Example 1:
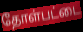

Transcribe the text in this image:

தோள்பட்டை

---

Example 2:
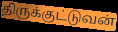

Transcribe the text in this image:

திருக்குட்டுவன்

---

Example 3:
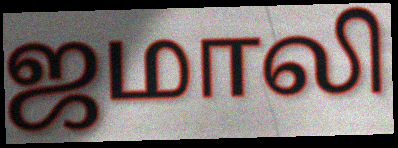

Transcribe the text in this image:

ஜமாலி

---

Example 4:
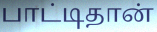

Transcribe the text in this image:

பாட்டிதான்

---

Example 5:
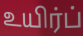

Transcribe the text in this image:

உயிர்ப்